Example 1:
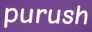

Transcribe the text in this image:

purush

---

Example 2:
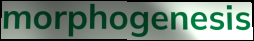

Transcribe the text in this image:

morphogenesis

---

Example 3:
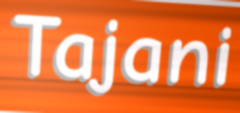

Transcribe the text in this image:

Tajani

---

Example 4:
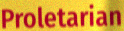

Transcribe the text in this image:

Proletarian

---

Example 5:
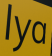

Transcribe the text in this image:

Iya